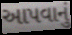
આપવાનું